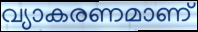
വ്യാകരണമാണ്